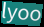
lyoo